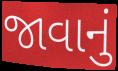
જાવાનું